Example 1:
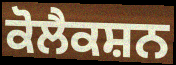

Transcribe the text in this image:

ਕੋਲੈਕਸ਼ਨ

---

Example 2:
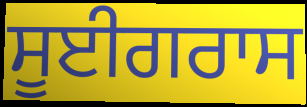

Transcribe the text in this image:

ਸੂਈਗਰਾਸ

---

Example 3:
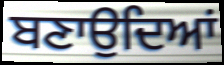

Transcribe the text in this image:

ਬਣਾਉਦਿਆਂ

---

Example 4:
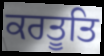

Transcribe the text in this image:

ਕਰਤੂਤਿ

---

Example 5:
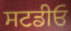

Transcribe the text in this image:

ਸਟਡੀਓ